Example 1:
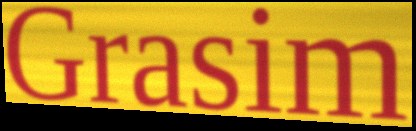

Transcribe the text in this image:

Grasim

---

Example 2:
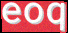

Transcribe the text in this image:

eoq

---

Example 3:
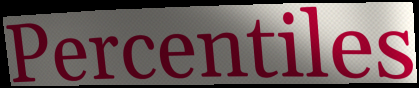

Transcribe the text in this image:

Percentiles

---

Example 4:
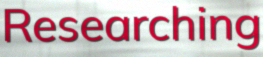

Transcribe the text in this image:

Researching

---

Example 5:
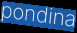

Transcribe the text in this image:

pondina